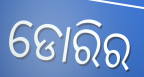
ଡୋରିର